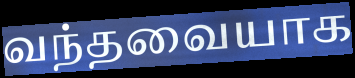
வந்தவையாக